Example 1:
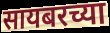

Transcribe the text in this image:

सायबरच्या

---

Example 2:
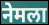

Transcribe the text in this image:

नेमला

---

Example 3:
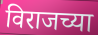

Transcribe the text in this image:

विराजच्या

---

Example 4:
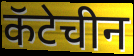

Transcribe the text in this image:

कॅटेचीन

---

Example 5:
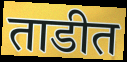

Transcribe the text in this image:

ताडीत